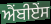
ਐਂਬੀਏਂਸ